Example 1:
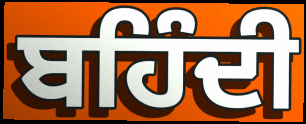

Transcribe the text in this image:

ਬਹਿੰਦੀ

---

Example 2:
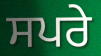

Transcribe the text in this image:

ਸਪਰੇ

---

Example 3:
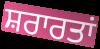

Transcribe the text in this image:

ਸ਼ਰਾਰਤਾਂ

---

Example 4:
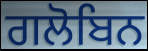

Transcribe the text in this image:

ਗਲੋਬਿਨ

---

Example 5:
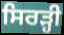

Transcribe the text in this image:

ਸਿਰੜ੍ਹੀ